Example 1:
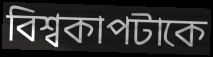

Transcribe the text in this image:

বিশ্বকাপটাকে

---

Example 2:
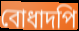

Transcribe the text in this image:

বোধাদপি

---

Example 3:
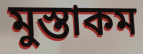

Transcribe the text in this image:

মুস্তাকম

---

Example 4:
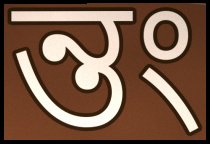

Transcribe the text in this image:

ন্তং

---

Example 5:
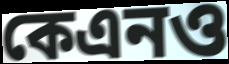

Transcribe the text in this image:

কেএনও